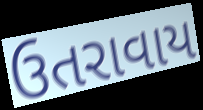
ઉતરાવાય